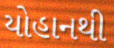
યોહાનથી